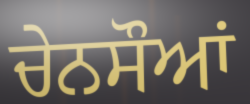
ਚੇਨਸੌਆਂ